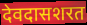
देवदासशरत